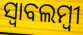
ସ୍ଵାବଲମ୍ଵୀ